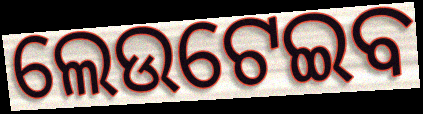
ଲେଉଟେଇବ